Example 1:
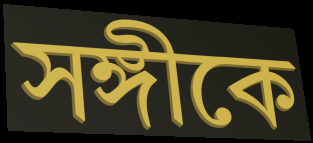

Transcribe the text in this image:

সঙ্গীকে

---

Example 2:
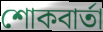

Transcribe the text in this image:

শোকবার্তা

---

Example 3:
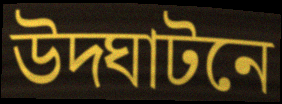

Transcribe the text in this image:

উদ্ঘাটনে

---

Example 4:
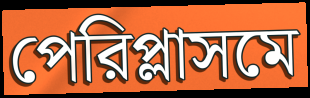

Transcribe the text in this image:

পেরিপ্লাসমে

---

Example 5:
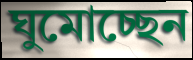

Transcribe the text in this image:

ঘুমোচ্ছেন